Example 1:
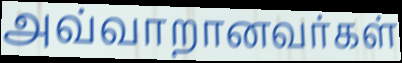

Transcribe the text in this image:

அவ்வாறானவர்கள்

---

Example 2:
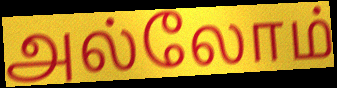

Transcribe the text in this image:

அல்லோம்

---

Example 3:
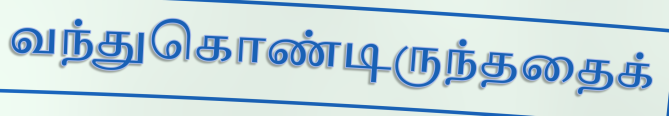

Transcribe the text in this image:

வந்துகொண்டிருந்ததைக்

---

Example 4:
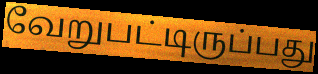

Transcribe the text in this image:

வேறுபட்டிருப்பது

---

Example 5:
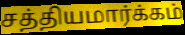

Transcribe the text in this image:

சத்தியமார்க்கம்